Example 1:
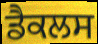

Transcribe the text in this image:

ਡੈਕਲਸ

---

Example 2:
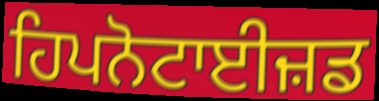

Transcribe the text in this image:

ਹਿਪਨੋਟਾਈਜ਼ਡ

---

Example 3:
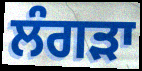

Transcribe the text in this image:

ਲੰਗੜਾ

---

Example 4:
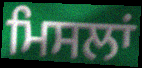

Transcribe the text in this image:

ਮਿਸਲਾਂ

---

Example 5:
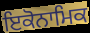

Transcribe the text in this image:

ਇਕੋਨਾਮਿਕ